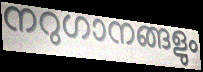
നറുഗാനങ്ങളും